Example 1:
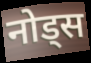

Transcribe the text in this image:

नोड्स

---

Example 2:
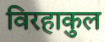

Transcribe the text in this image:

विरहाकुल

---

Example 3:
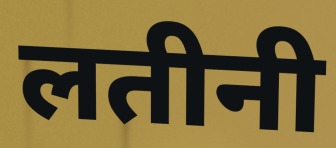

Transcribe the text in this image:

लतीनी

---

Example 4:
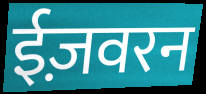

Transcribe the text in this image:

ईज़वरन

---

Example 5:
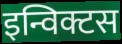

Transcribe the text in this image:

इन्विक्टस